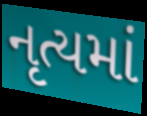
નૃત્યમાં